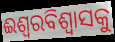
ଈଶ୍ୱରବିଶ୍ଵାସକୁ